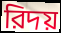
রিদয়